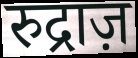
रुद्राज़